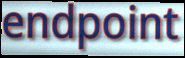
endpoint